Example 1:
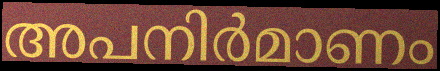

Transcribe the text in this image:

അപനിർമാണം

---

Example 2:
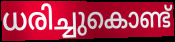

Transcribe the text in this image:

ധരിച്ചുകൊണ്ട്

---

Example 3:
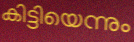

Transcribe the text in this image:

കിട്ടിയെന്നും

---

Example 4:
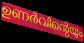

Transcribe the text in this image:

ഉണർവിന്റെയും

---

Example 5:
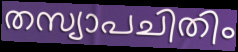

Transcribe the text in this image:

തസ്യാപചിതിം